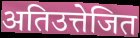
अतिउत्तेजित